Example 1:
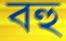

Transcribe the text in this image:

বহু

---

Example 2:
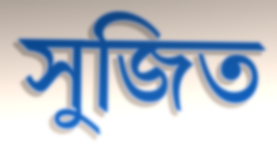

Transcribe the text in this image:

সুজিত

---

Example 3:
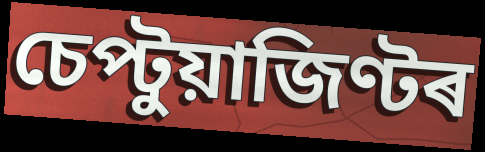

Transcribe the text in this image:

চেপ্টুয়াজিণ্টৰ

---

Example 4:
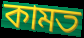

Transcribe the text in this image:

কামত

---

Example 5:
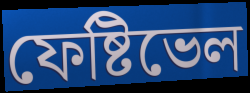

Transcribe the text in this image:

ফেষ্টিভেল